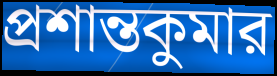
প্রশান্তকুমার